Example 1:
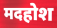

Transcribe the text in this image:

मदहोश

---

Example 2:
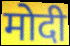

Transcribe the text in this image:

मोदी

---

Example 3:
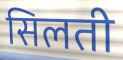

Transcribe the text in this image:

सिलती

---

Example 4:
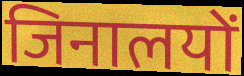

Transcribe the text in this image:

जिनालयों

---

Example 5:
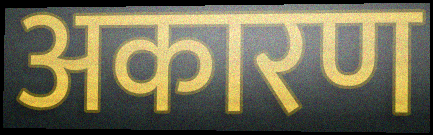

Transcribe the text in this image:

अकारण